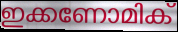
ഇക്കണോമിക്